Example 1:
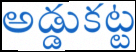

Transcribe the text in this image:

అడ్డుకట్ట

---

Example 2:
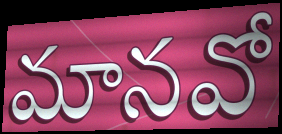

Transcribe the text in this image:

మానవో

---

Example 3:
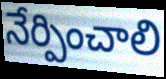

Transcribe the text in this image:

నేర్పించాలి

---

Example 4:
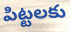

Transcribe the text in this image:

పిట్టలకు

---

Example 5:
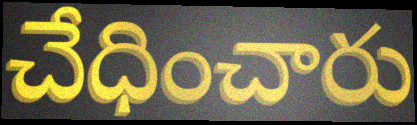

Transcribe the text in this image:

చేధించారు